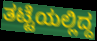
ತಟ್ಟೆಯಲ್ಲಿದ್ದ